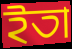
ইতা